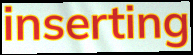
inserting